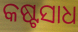
କଷ୍ଟସାଧ